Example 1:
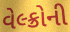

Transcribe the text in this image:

વેલ્ક્રોની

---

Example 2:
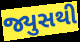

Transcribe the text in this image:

જ્યુસથી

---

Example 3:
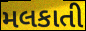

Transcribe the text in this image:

મલકાતી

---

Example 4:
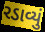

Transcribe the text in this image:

રડાવ્યું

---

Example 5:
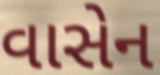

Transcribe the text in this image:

વાસેન